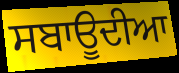
ਸਬਾਊਦੀਆ